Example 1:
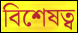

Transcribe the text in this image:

বিশেষত্ব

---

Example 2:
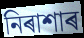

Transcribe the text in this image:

নিৰাশাৰ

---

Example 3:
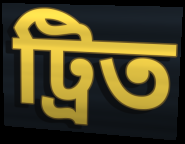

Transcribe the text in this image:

ট্ৰিত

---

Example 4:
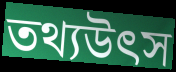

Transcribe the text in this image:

তথ্যউৎস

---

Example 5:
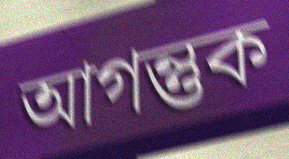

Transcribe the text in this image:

আগন্তুক